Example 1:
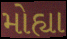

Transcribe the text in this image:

મોહ્યા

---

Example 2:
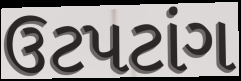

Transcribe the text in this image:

ઉટપટાંગ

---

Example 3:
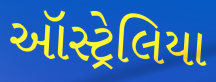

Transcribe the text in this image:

ઑસ્ટ્રેલિયા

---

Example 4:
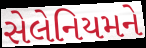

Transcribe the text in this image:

સેલેનિયમને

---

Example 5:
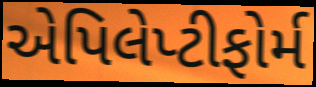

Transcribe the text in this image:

એપિલેપ્ટીફોર્મ